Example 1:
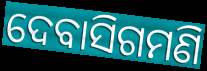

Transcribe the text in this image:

ଦେବାସିଗମଣି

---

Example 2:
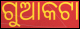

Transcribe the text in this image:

ଗୁଆକଟା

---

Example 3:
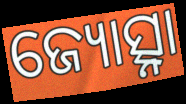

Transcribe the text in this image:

ଜ୍ୟୋତ୍ସ୍ନା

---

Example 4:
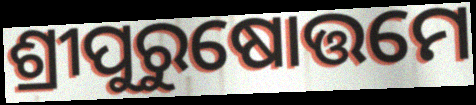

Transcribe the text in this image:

ଶ୍ରୀପୁରୁଷୋତ୍ତମେ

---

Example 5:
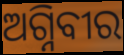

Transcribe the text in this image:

ଅଗ୍ନିବୀର